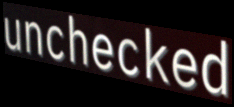
unchecked